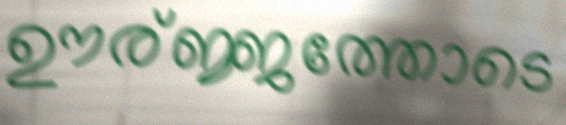
ഊര്ജ്ജത്തോടെ